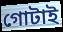
গোটাই